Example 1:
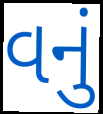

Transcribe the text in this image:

વનું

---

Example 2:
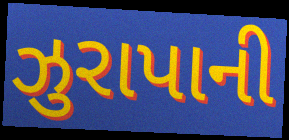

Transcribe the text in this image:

ઝુરાપાની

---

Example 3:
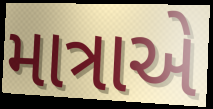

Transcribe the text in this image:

માત્રાએ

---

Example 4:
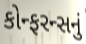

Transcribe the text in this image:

કોન્ફરન્સનું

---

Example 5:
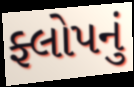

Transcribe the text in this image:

ફ્લોપનું